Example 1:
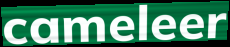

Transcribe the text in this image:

cameleer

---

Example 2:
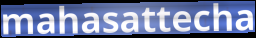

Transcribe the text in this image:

mahasattecha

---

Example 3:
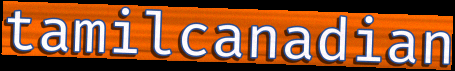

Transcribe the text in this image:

tamilcanadian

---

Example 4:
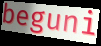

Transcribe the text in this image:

beguni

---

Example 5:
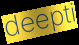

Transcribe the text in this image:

deepti